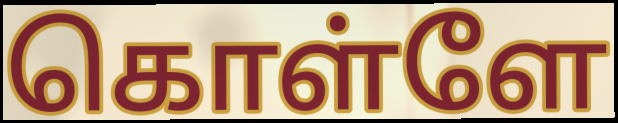
கொள்ளே